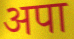
अपा